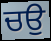
ਚਉ